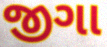
જીગા